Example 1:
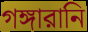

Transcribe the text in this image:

গঙ্গারানি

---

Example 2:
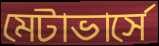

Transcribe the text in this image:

মেটাভার্সে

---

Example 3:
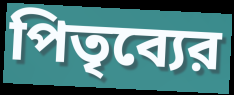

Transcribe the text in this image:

পিতৃব্যের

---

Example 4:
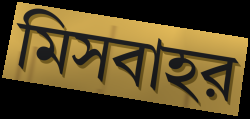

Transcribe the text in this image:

মিসবাহর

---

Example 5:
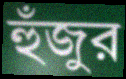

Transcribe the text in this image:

হুঁজুর